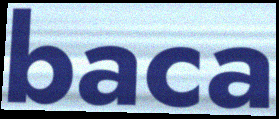
baca